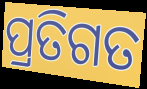
ପ୍ରତିଗତ